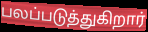
பலப்படுத்துகிறார்